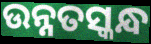
ଉନ୍ନତସ୍କନ୍ଧ